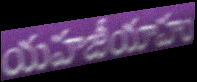
యహజీయాహు